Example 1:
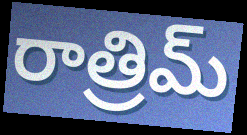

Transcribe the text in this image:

రాత్రిమ్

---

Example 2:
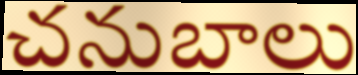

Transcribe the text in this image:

చనుబాలు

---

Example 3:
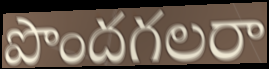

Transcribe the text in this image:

పొందగలరా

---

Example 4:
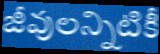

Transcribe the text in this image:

జీవులన్నిటికీ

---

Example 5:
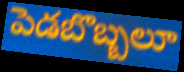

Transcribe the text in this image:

పెడబొబ్బలూ